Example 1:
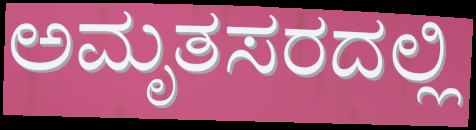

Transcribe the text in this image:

ಅಮೃತಸರದಲ್ಲಿ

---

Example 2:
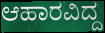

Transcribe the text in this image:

ಆಹಾರವಿದ್ದ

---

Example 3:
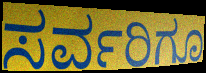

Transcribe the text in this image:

ಸರ್ವರಿಗೂ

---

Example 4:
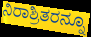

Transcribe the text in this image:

ನಿರಾಶ್ರಿತರನ್ನೂ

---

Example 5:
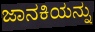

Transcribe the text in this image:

ಜಾನಕಿಯನ್ನು